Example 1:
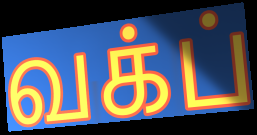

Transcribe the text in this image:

வக்ப்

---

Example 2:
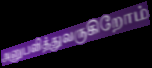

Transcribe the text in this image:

அனுபவித்துவருகிறோம்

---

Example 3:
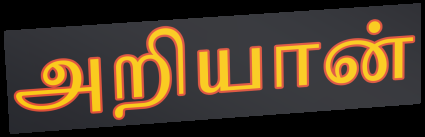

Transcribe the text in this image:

அறியான்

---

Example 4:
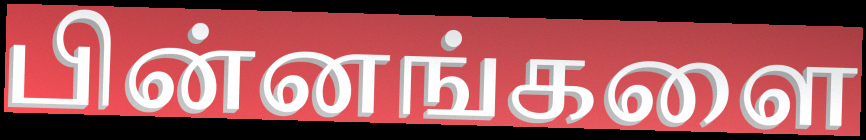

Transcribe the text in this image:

பின்னங்களை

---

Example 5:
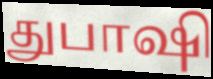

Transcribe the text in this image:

துபாஷி